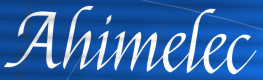
Ahimelec